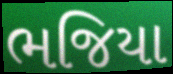
ભજિયા